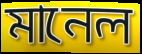
মানেল